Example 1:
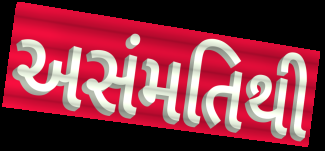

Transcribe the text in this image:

અસંમતિથી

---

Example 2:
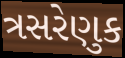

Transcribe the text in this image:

ત્રસરેણુક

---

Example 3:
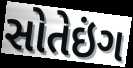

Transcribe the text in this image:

સોતેઇંગ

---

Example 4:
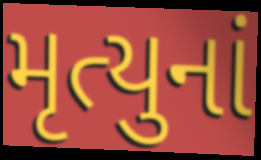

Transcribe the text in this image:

મૃત્યુનાં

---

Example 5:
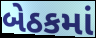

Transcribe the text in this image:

બેઠકમાં